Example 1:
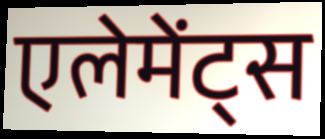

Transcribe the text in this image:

एलेमेंट्स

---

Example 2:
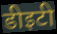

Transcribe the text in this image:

डीइटी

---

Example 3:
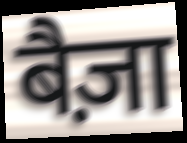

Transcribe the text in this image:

बैज़ा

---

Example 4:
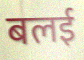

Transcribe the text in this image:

बलई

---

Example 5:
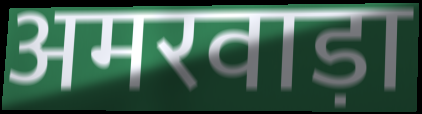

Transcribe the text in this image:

अमरवाड़ा